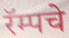
रॅम्पचे